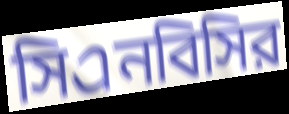
সিএনবিসির